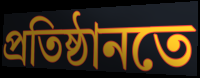
প্ৰতিষ্ঠানতে